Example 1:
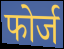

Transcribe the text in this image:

फोर्ज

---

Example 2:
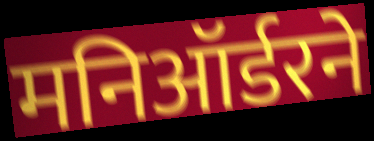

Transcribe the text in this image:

मनिऑर्डरने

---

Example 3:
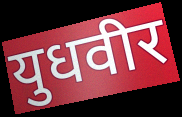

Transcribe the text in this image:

युधवीर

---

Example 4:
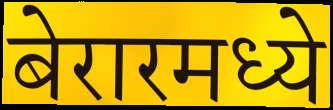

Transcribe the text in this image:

बेरारमध्ये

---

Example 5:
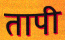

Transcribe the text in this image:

तापी